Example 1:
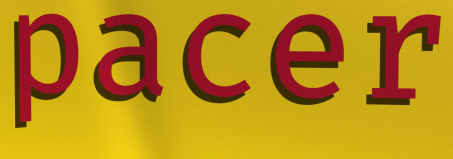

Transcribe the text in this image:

pacer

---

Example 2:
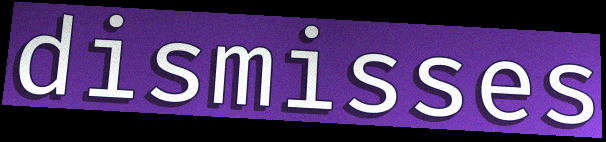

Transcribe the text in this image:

dismisses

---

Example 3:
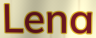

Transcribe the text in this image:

Lena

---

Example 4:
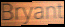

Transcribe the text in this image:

Bryant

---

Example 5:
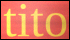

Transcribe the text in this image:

tito